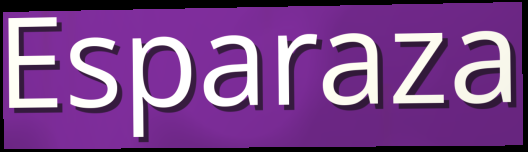
Esparaza